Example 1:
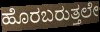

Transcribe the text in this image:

ಹೊರಬರುತ್ತಲೇ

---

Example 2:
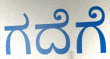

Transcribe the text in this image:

ಗದೆಗೆ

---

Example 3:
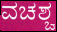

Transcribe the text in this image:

ವಚಶ್ಚ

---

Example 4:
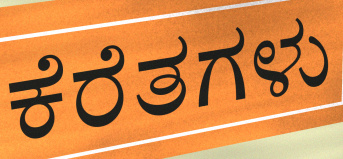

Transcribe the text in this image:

ಕೆರೆತಗಳು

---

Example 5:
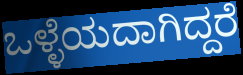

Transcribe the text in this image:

ಒಳ್ಳೆಯದಾಗಿದ್ದರೆ